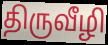
திருவீழி